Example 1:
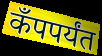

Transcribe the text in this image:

कँपपर्यंत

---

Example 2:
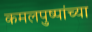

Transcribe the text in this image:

कमलपुष्पांच्या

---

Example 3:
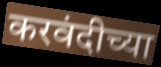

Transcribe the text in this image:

करवंदीच्या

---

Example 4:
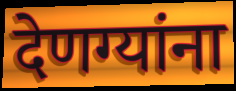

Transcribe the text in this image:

देणग्यांना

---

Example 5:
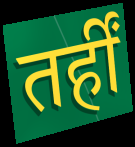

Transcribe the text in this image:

तर्हीं